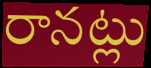
రానట్లు